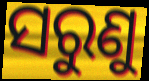
ସରୁଣୁ